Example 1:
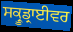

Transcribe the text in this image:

ਸਕ੍ਰੂਡ੍ਰਾਈਵਰ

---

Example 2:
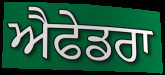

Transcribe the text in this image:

ਐਫੇਡਰਾ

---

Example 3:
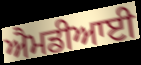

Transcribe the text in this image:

ਐਮਡੀਆਈ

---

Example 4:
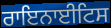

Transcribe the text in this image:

ਰਾਇਨਾਈਟਿਸ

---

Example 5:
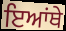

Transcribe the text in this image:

ਇਆਂਥੇ